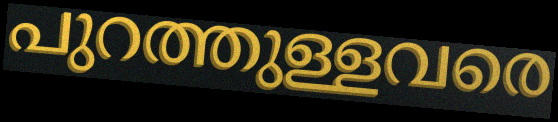
പുറത്തുള്ളവരെ